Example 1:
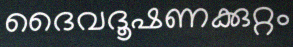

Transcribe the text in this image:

ദൈവദൂഷണക്കുറ്റം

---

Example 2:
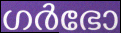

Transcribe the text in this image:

ഗർഭോ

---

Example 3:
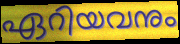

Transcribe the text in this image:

ഏറിയവനും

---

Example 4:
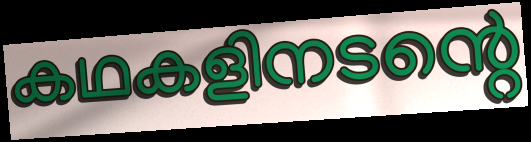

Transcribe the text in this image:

കഥകളിനടന്റെ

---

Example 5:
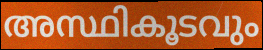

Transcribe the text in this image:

അസ്ഥികൂടവും